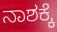
ನಾಶಕ್ಕೆ